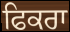
ਫਿਕਰਾ